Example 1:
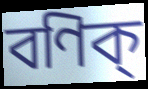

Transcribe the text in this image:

বণিক্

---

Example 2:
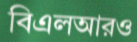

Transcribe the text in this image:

বিএলআরও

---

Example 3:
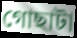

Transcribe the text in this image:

গোছাটা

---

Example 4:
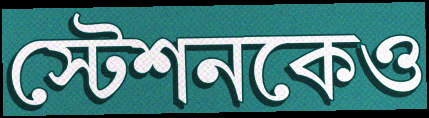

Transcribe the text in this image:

স্টেশনকেও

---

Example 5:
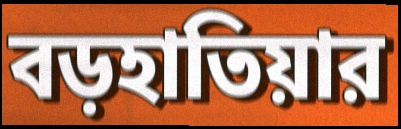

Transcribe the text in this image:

বড়হাতিয়ার